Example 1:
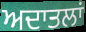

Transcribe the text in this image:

ਅਦਾਤਲਾਂ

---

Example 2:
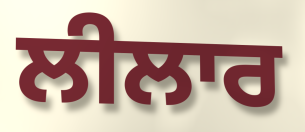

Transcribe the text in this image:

ਲੀਲਾਰ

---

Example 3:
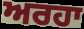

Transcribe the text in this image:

ਅਰਹਾ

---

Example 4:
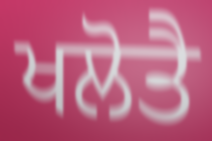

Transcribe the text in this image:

ਖਲੋਤੈ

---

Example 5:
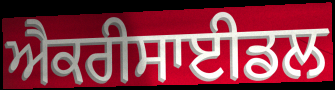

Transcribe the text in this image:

ਐਕਰੀਸਾਈਡਲ